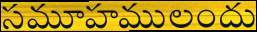
సమూహములందు